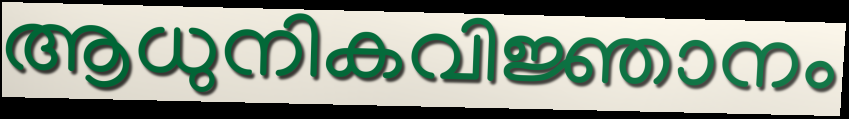
ആധുനികവിജ്ഞാനം